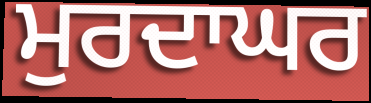
ਮੁਰਦਾਘਰ